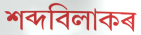
শব্দবিলাকৰ